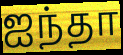
ஐந்தா